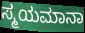
ಸ್ಮಯಮಾನಾ